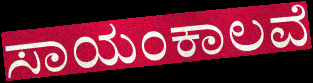
ಸಾಯಂಕಾಲವೆ